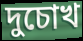
দুচোখ